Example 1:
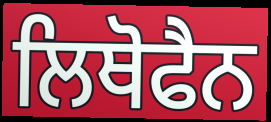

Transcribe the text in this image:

ਲਿਥੋਫੈਨ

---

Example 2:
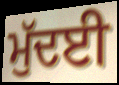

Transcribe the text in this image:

ਮੁੱਦਈ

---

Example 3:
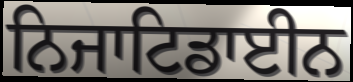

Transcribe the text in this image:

ਨਿਜਾਟਿਡਾਈਨ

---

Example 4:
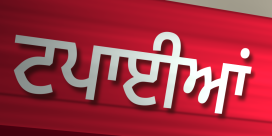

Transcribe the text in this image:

ਟਪਾਈਆਂ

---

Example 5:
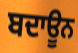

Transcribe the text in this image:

ਬਦਾਊਨ